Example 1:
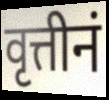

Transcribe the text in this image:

वृत्तीनं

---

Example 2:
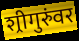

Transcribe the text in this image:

श्रीगुरुंवर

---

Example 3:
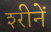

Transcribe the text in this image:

श्रीनें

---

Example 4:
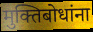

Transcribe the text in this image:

मुक्तिबोधांना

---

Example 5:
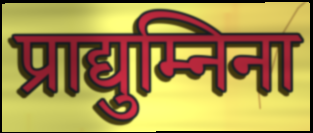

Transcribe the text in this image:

प्राद्युम्निना